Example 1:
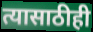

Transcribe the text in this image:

त्यासाठीही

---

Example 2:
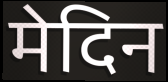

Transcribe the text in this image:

मेदिन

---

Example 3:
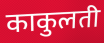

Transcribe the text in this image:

काकुलती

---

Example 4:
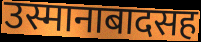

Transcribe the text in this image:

उस्मानाबादसह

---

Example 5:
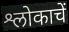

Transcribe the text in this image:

श्लोकाचें